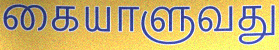
கையாளுவது